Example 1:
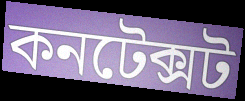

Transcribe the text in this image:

কনটেক্সট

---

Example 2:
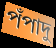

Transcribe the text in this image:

পঁপাদু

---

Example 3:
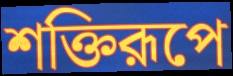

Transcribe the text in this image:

শক্তিরূপে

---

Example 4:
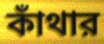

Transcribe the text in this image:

কাঁথার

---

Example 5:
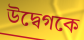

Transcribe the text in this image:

উদ্বেগকে